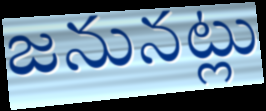
జనునట్లు